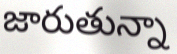
జారుతున్నా